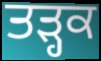
ਤੜ੍ਹਕ